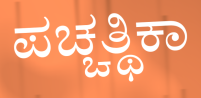
ಪಚ್ಚತ್ಥಿಕಾ